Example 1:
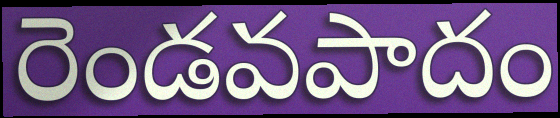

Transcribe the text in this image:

రెండవపాదం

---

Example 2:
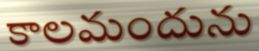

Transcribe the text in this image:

కాలమందును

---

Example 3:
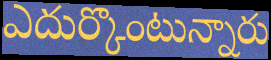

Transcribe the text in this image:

ఎదుర్కొంటున్నారు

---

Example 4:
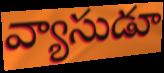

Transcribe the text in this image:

వ్యాసుడూ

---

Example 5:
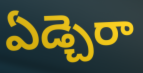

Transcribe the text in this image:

ఏడ్చెరా